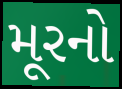
મૂરનો